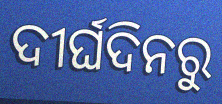
ଦୀର୍ଘଦିନରୁ